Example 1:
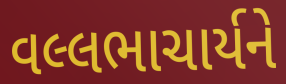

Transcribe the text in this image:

વલ્લભાચાર્યને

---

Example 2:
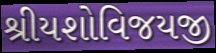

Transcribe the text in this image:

શ્રીયશોવિજયજી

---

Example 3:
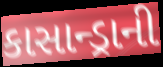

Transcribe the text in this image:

કાસાન્ડ્રાની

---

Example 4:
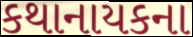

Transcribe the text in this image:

કથાનાયકના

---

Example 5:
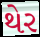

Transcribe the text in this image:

થેર